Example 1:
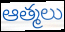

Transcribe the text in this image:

ఆత్మలు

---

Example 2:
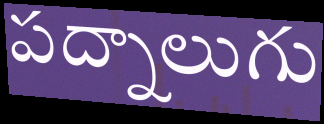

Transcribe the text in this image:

పద్నాలుగు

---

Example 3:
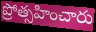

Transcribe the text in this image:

ప్రోత్సహించారు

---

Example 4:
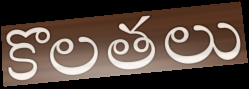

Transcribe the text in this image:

కొలతలు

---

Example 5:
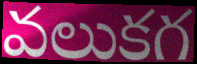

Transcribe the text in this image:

వలుకగ